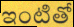
ఇంటితో